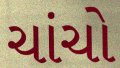
ચાંચો